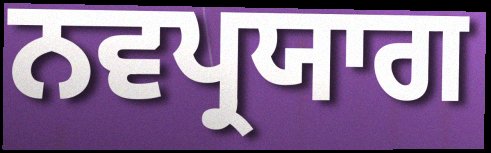
ਨਵਪ੍ਰਯਾਗ